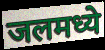
जलमध्ये